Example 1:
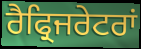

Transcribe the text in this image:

ਰੈਫ੍ਰਿਜਰੇਟਰਾਂ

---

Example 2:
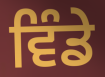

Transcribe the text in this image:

ਵਿੰਡੇ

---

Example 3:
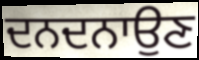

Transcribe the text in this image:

ਦਨਦਨਾਉਣ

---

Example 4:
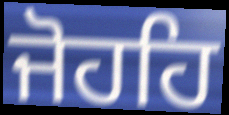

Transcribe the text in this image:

ਜੋਹਹਿ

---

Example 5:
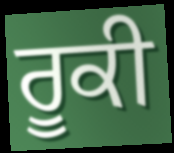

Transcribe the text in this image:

ਰੂਕੀ